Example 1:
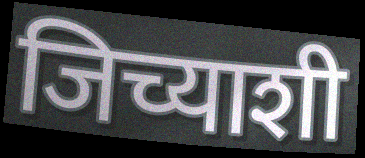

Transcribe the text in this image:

जिच्याशी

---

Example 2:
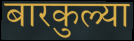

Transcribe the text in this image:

बारकुल्या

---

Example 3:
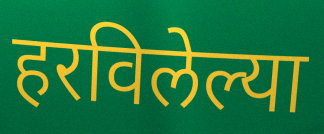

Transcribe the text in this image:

हरविलेल्या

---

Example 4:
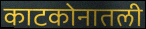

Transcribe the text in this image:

काटकोनातली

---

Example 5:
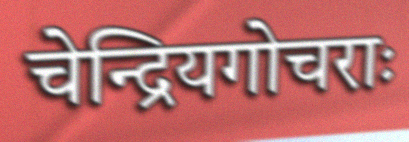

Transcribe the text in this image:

चेन्द्रियगोचराः